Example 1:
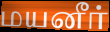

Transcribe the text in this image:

மயனீர்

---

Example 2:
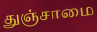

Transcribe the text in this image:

துஞ்சாமை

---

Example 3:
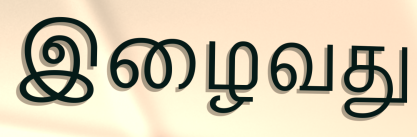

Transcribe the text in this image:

இழைவது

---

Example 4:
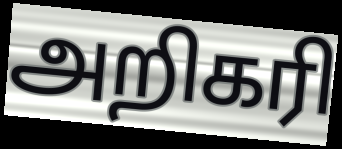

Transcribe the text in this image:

அறிகரி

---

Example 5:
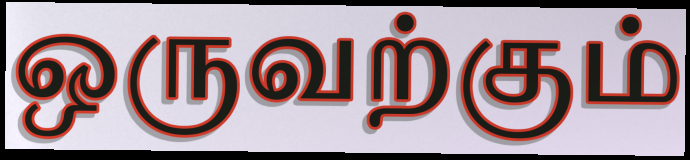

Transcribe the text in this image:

ஒருவற்கும்